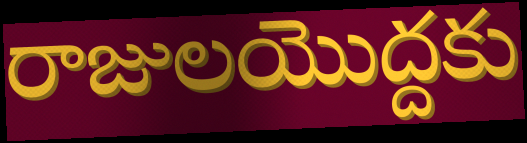
రాజులయొద్దకు